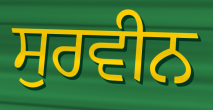
ਸੁਰਵੀਨ